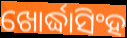
ଖୋର୍ଦ୍ଧାସିଂହ